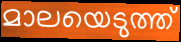
മാലയെടുത്ത്